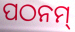
ପଠନମ୍